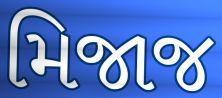
મિજાજ